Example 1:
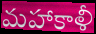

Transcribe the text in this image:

మహాకాళీ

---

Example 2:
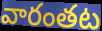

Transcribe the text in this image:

వారంతట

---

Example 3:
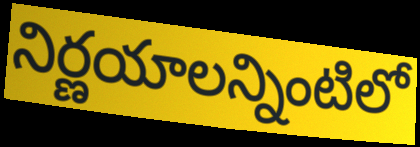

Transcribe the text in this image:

నిర్ణయాలన్నింటిలో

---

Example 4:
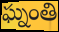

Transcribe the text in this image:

ఘ్నంతి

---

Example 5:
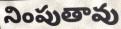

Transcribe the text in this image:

నింపుతావు